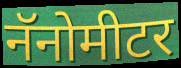
नॅनोमीटर